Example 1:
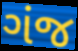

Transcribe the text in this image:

ગંજ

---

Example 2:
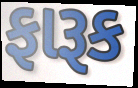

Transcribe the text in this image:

ફારૂક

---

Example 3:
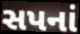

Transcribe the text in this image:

સપનાં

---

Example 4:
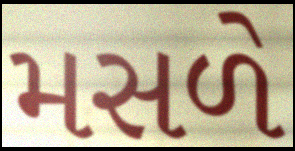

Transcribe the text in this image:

મસળે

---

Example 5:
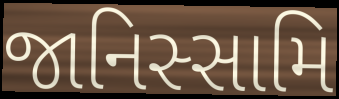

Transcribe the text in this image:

જાનિસ્સામિ